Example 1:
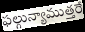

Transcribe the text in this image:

ఫల్గున్యాముత్తరే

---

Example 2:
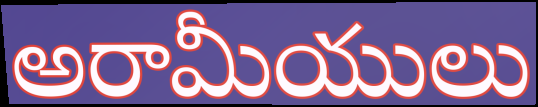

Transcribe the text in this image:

అరామీయులు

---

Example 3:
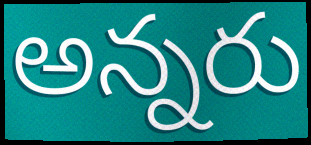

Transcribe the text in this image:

అన్నరు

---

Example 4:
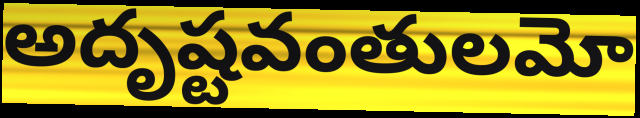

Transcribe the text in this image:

అదృష్టవంతులమో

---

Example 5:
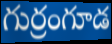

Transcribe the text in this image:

గుర్రంగూడ